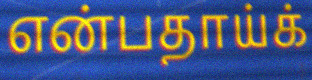
என்பதாய்க்